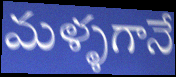
మళ్ళగానే